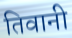
तिवानी